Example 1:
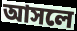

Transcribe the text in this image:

আসলে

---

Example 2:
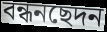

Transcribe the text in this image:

বন্ধনছেদন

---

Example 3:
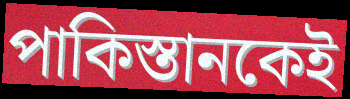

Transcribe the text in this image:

পাকিস্তানকেই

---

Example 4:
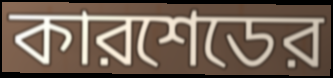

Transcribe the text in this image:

কারশেডের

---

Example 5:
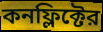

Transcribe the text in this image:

কনফ্লিক্টের